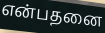
என்பதனை